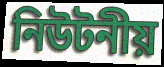
নিউটনীয়